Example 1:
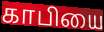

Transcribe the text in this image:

காபியை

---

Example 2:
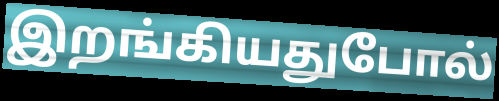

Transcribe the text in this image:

இறங்கியதுபோல்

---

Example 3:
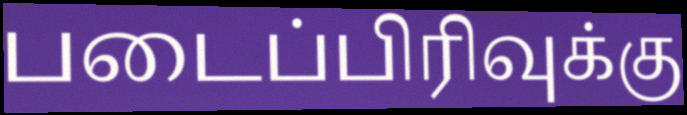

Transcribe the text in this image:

படைப்பிரிவுக்கு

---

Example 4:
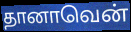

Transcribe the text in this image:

தானாவென்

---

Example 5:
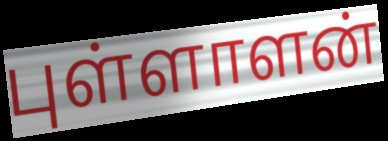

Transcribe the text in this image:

புள்ளாளன்